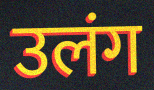
उलंग